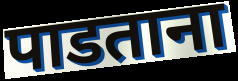
पाडताना